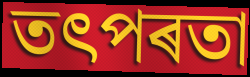
তৎপৰতা